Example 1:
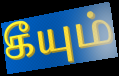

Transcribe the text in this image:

கீயும்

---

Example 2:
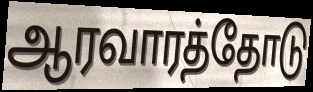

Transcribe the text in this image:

ஆரவாரத்தோடு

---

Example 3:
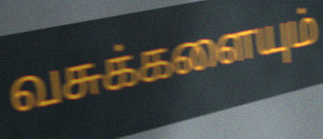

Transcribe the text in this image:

வசுக்களையும்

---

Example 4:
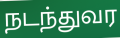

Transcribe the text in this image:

நடந்துவர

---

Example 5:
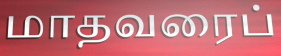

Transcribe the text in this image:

மாதவரைப்